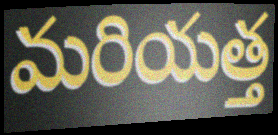
మరియత్త